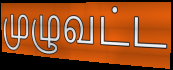
முழுவட்ட